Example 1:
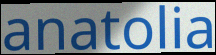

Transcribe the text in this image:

anatolia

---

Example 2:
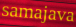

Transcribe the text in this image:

samajava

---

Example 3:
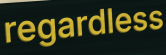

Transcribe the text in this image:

regardless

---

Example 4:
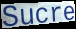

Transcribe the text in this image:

Sucre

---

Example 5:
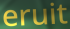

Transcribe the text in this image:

eruit